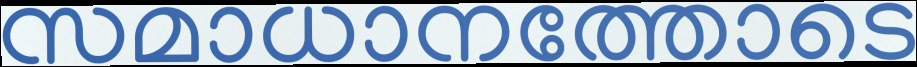
സമാധാനത്തോടെ